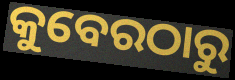
କୁବେରଠାରୁ